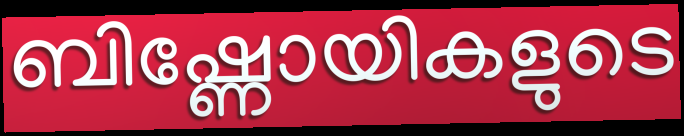
ബിഷ്ണോയികളുടെ